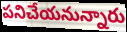
పనిచేయనున్నారు